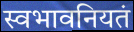
स्वभावनियतं